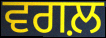
ਵਗਲ਼